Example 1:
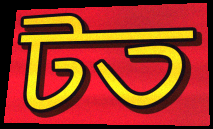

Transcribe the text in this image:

টত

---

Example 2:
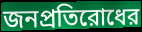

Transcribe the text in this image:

জনপ্রতিরোধের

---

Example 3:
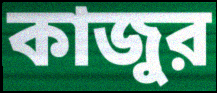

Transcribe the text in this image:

কাজুর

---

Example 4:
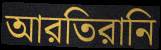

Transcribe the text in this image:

আরতিরানি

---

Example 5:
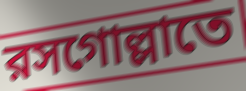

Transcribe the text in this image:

রসগোল্লাতে